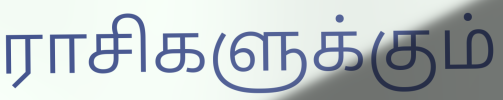
ராசிகளுக்கும்